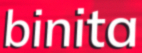
binita